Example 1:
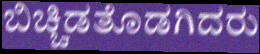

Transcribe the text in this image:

ಬಿಚ್ಚಿಡತೊಡಗಿದರು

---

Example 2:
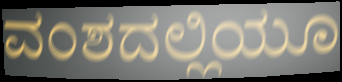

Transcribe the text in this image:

ವಂಶದಲ್ಲಿಯೂ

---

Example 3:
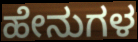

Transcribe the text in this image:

ಹೇನುಗಳ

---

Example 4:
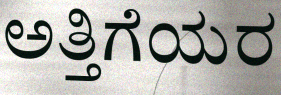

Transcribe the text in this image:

ಅತ್ತಿಗೆಯರ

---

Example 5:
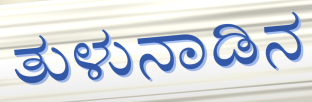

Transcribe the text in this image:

ತುಳುನಾಡಿನ